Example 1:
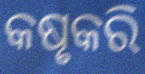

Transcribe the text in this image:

କଷୃକରି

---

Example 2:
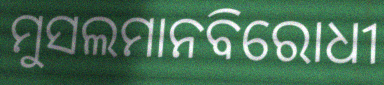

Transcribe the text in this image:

ମୁସଲମାନବିରୋଧୀ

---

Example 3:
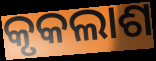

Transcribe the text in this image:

କୃକଲାଶ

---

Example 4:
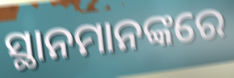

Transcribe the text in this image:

ସ୍ଥାନମାନଙ୍କରେ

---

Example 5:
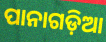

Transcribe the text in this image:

ପାନାଗଡ଼ିଆ